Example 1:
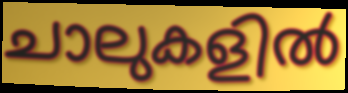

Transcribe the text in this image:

ചാലുകളിൽ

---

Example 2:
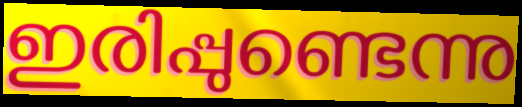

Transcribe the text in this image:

ഇരിപ്പുണ്ടെന്നു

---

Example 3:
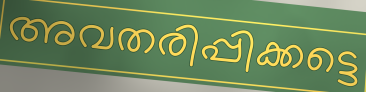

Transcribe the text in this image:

അവതരിപ്പിക്കട്ടെ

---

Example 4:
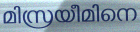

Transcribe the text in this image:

മിസ്രയീമിനെ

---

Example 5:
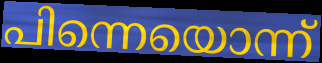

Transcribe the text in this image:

പിന്നെയൊന്ന്